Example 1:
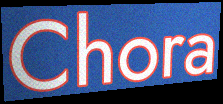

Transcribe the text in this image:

Chora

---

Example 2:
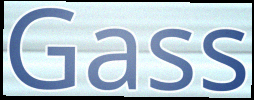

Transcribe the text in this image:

Gass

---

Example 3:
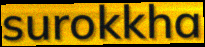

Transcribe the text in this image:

surokkha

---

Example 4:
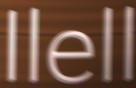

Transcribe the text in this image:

Ilell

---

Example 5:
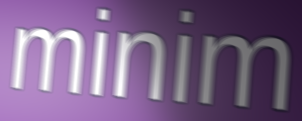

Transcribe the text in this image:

minim